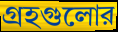
গ্রহগুলোর